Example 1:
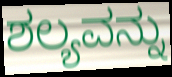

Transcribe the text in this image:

ಶಲ್ಯವನ್ನು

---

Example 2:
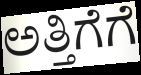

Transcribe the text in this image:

ಅತ್ತಿಗೆಗೆ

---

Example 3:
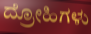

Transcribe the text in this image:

ದ್ರೋಹಿಗಳು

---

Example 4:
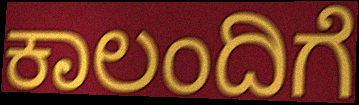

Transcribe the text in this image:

ಕಾಲಂದಿಗೆ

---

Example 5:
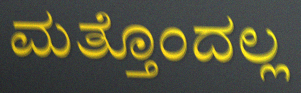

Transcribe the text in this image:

ಮತ್ತೊಂದಲ್ಲ